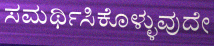
ಸಮರ್ಥಿಸಿಕೊಳ್ಳುವುದೇ